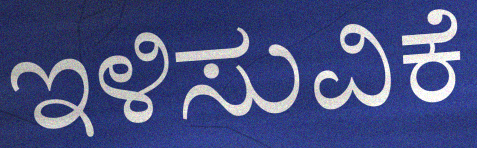
ಇಳಿಸುವಿಕೆ